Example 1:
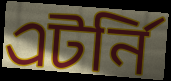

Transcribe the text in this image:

এটর্নি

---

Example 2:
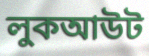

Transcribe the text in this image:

লুকআউট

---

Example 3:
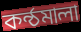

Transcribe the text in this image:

কন্ঠমালা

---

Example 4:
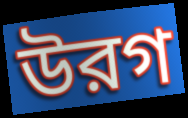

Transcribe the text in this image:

উরগ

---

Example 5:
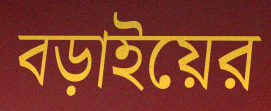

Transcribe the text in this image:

বড়াইয়ের